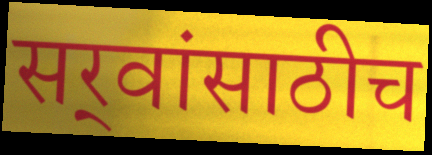
सर्वांसाठीच